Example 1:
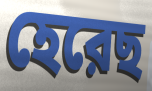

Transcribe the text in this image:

হেরেছ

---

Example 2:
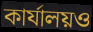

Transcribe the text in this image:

কার্যালয়ও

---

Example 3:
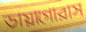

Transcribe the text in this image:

ডায়াগোরাস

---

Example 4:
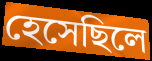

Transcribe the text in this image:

হেসেছিলে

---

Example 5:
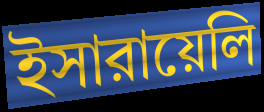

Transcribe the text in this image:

ইসারায়েলি